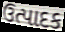
ઉત્પાદક